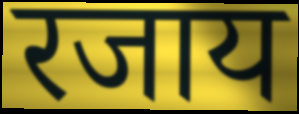
रजाय